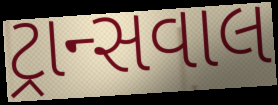
ટ્રાન્સવાલ